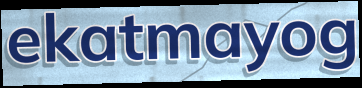
ekatmayog